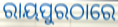
ରାୟପୁରଠାରେ